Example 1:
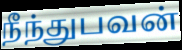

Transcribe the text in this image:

நீந்துபவன்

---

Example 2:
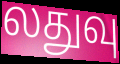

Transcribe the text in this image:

லதுவு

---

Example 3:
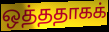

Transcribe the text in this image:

ஒத்ததாகக்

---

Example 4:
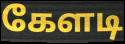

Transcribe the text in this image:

கேளடி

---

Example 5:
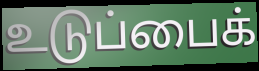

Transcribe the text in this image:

உடுப்பைக்